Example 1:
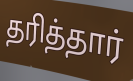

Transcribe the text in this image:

தரித்தார்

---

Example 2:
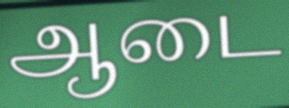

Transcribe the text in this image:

ஆடை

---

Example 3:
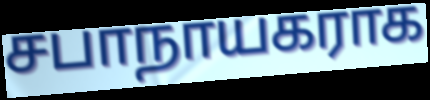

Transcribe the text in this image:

சபாநாயகராக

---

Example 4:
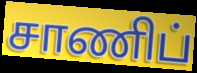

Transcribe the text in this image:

சாணிப்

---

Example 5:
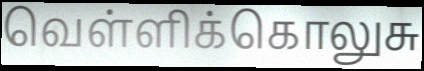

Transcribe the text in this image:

வெள்ளிக்கொலுசு